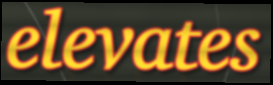
elevates